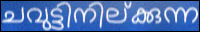
ചവുട്ടിനില്ക്കുന്ന